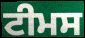
ਟੀਮਸ